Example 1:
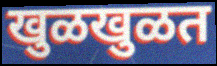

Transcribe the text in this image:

खुळखुळत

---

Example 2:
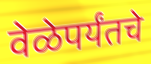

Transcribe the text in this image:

वेळेपर्यंतचे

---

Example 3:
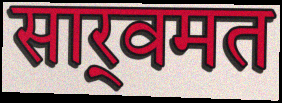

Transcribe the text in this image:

सार्वमत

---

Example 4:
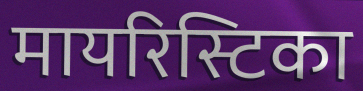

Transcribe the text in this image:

मायरिस्टिका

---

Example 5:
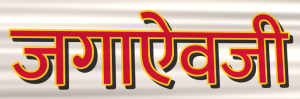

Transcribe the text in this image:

जगाऐवजी